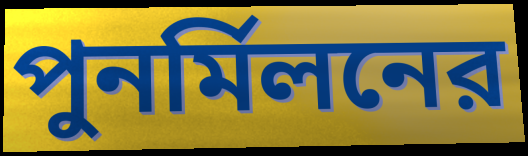
পুনর্মিলনের